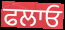
ਫਲਾਓ